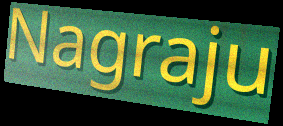
Nagraju